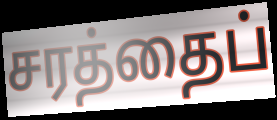
சரத்தைப்